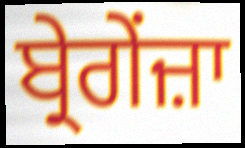
ਬ੍ਰੇਗੇਂਜ਼ਾ